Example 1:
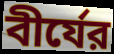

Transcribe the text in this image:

বীর্যের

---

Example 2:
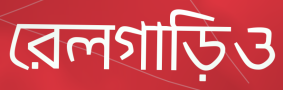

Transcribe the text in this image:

রেলগাড়িও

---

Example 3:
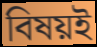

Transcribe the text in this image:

বিষয়ই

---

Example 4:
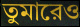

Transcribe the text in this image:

তুমারেও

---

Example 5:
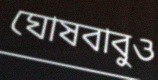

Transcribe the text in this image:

ঘোষবাবুও